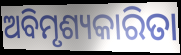
ଅବିମୃଶ୍ୟକାରିତା